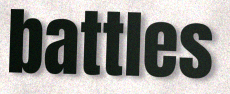
battles